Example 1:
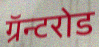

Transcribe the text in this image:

ग्रॅन्टरोड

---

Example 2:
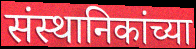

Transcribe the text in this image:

संस्थानिकांच्या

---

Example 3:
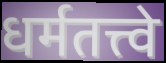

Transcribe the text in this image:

धर्मतत्त्वे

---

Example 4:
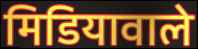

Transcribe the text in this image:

मिडियावाले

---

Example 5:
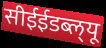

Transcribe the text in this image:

सीईईडब्ल्यू